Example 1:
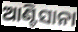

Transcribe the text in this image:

ଆଣ୍ଟିସାନା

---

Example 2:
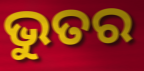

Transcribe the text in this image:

ଭୁତର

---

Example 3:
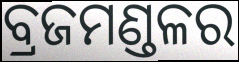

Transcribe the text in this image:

ବ୍ରଜମଣ୍ଡଳର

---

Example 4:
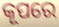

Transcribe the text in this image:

କୂପରେ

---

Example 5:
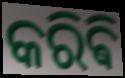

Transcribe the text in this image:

କରିଵି